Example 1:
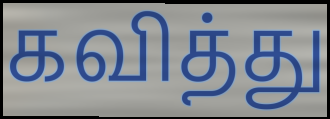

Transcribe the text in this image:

கவித்து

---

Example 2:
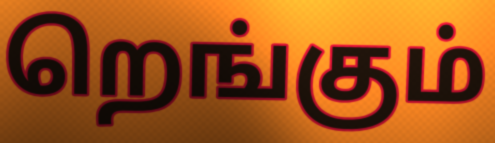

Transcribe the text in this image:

றெங்கும்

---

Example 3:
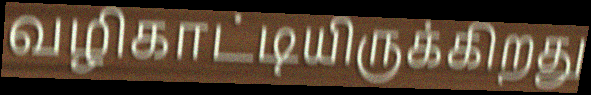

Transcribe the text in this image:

வழிகாட்டியிருக்கிறது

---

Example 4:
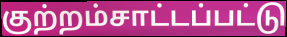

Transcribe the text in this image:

குற்றம்சாட்டப்பட்டு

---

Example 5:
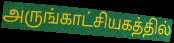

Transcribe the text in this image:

அருங்காட்சியகத்தில்